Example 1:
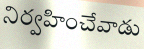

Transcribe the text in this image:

నిర్వహించేవాడు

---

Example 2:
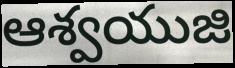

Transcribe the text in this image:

ఆశ్వయుజి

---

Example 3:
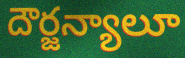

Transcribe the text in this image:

దౌర్జన్యాలూ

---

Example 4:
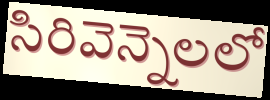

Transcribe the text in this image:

సిరివెన్నెలలో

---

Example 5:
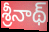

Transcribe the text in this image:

శ్రీనాథ్